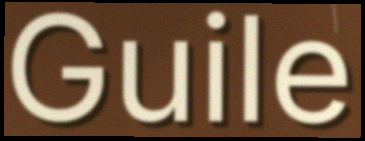
Guile